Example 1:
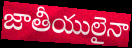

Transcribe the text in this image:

జాతీయులైనా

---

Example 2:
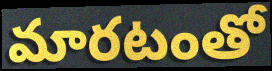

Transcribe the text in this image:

మారటంతో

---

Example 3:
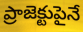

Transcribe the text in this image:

ప్రాజెక్టుపైనే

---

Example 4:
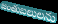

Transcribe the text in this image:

జంతుబలులను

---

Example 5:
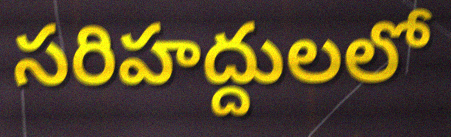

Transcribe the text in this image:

సరిహద్దులలో